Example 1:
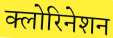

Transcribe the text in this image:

क्लोरिनेशन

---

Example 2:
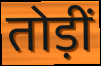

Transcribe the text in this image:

तोड़ीं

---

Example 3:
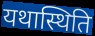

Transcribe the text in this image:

यथास्थिति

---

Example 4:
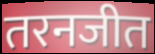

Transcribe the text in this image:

तरनजीत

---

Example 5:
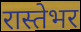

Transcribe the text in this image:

रास्तेभर